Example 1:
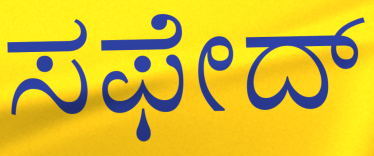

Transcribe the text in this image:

ಸಫೇದ್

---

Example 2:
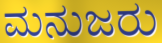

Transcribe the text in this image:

ಮನುಜರು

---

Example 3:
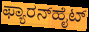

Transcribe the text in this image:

ಫ್ಯಾರನ್‌ಹೈಟ್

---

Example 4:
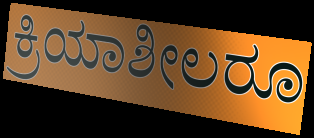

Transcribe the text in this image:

ಕ್ರಿಯಾಶೀಲರೂ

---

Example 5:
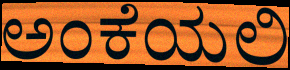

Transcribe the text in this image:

ಅಂಕೆಯಲಿ